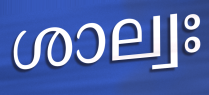
ശാല്വഃ